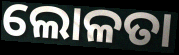
ଲୋଳତା